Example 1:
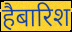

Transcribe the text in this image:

हैबारिश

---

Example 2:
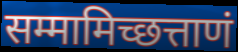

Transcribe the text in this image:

सम्मामिच्छत्ताणं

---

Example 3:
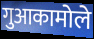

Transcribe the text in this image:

गुआकामोले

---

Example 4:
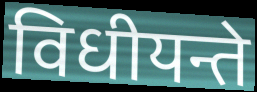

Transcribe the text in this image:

विधीयन्ते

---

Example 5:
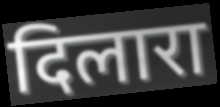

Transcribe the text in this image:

दिलारा